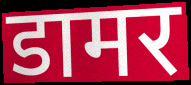
डामर